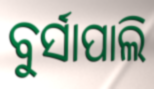
ବୁର୍ସାପାଲି